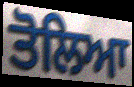
ਤੋਲਿਆ